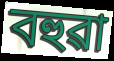
বহুৱা